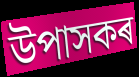
উপাসকৰ